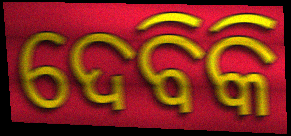
ଦେବିକି